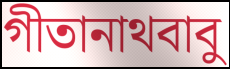
গীতানাথবাবু